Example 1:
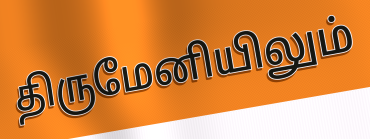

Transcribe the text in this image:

திருமேனியிலும்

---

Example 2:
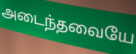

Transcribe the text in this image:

அடைந்தவையே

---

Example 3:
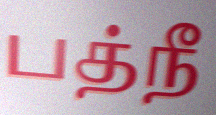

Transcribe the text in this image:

பத்நீ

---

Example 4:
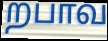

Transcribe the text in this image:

றபாவ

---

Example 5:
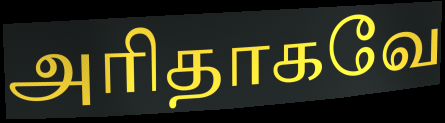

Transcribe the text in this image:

அரிதாகவே